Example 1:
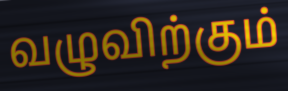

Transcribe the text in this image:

வழுவிற்கும்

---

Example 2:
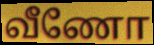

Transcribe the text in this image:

வீணோ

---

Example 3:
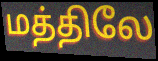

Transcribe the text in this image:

மத்திலே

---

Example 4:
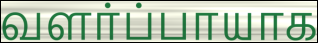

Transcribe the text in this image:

வளர்ப்பாயாக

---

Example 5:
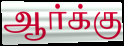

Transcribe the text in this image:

ஆர்க்கு